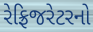
રેફ્રિજરેટરનો